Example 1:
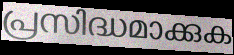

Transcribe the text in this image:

പ്രസിദ്ധമാക്കുക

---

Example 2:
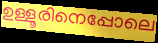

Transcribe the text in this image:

ഉള്ളൂരിനെപ്പോലെ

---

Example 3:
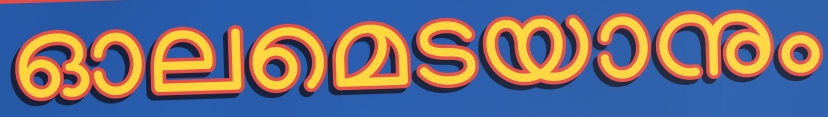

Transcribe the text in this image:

ഓലമെടയാനും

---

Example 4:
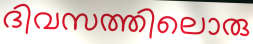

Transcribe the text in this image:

ദിവസത്തിലൊരു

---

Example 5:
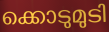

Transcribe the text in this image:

ക്കൊടുമുടി